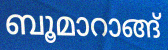
ബൂമാറാങ്ങ്